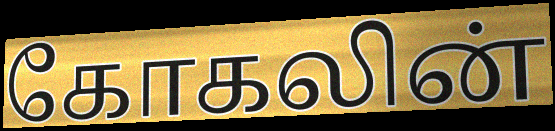
கோகலின்